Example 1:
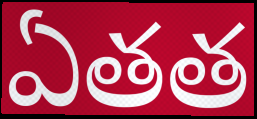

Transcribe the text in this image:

ఏతత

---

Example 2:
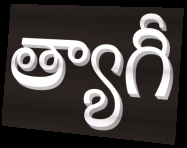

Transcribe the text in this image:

త్యాగీ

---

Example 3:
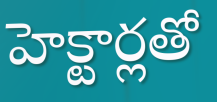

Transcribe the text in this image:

హెక్టార్లతో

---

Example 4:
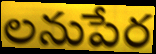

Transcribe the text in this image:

లనుపేర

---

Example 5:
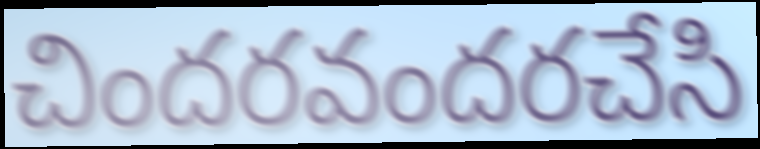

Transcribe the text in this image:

చిందరవందరచేసి